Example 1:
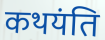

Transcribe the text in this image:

कथयंति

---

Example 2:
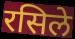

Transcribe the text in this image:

रसिले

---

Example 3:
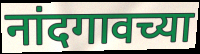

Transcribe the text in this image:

नांदगावच्या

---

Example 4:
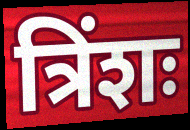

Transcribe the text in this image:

त्रिंशः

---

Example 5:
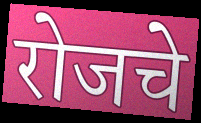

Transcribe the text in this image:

रोजचे